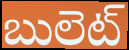
బులెట్